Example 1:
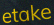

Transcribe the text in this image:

etake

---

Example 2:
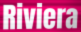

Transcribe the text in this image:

Riviera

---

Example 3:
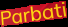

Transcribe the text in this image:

Parbati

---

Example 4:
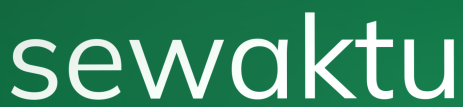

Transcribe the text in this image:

sewaktu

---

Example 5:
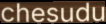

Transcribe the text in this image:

chesudu